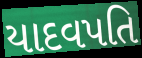
યાદવપતિ